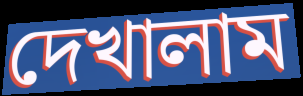
দেখালাম